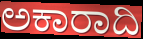
ಅಕಾರಾದಿ